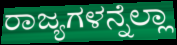
ರಾಜ್ಯಗಳನ್ನೆಲ್ಲಾ